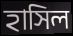
হাসিল